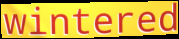
wintered